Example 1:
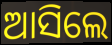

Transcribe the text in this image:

ଆସିଲେ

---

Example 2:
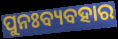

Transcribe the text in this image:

ପୁନଃବ୍ୟବହାର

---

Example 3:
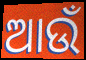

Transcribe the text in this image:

ଆଉଁ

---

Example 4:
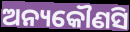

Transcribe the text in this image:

ଅନ୍ୟକୌଣସି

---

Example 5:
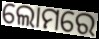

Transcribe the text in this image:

ଲୋମରେ